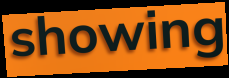
showing